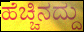
ಹೆಚ್ಚಿನದ್ದು